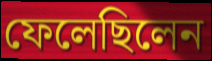
ফেলেছিলেন